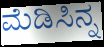
ಮೆಡಿಸಿನ್ನ